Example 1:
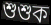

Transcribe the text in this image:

শুশুক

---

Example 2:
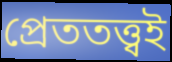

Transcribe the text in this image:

প্রেততত্ত্বই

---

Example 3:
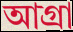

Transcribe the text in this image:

আগ্রা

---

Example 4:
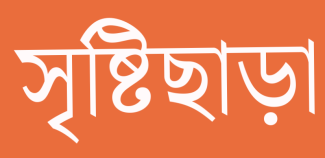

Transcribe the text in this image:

সৃষ্টিছাড়া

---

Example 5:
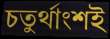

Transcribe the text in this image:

চতুর্থাংশই